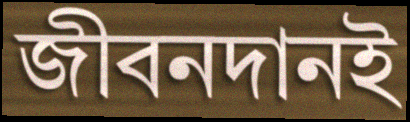
জীবনদানই